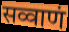
सव्वाणं